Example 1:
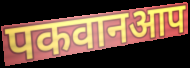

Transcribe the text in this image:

पकवानआप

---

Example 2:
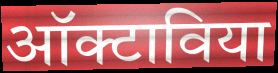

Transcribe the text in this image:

ऑक्टाविया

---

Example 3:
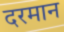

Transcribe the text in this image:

दरमान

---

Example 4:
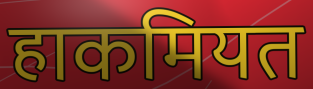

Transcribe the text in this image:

हाकमियत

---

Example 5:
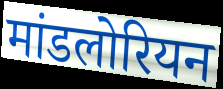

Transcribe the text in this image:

मांडलोरियन